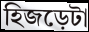
হিজড়েটা